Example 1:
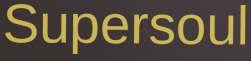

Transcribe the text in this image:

Supersoul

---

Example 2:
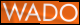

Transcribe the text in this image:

WADO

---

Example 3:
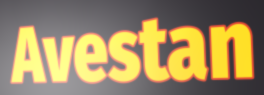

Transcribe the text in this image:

Avestan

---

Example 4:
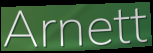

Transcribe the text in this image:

Arnett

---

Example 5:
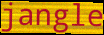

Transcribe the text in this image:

jangle